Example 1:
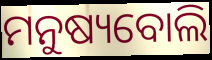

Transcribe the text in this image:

ମନୁଷ୍ୟବୋଲି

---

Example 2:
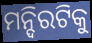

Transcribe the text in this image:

ମନ୍ଦିରଟିକୁ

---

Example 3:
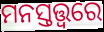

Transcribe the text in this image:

ମନସ୍ତତ୍ତ୍ଵରେ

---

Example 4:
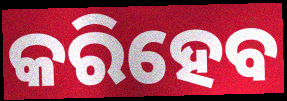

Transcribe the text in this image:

କରିହେବ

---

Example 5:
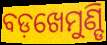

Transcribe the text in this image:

ବଡ଼ଖେମୁଣ୍ଡି